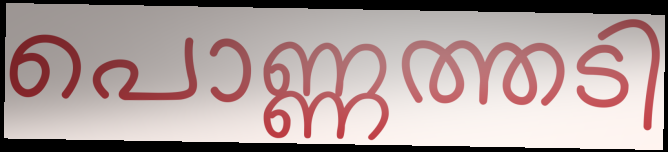
പൊണ്ണത്തടി